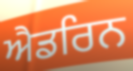
ਐਡਰਿਨ